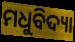
ମଧୁବିଦ୍ୟା